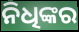
ନିଧିଙ୍କର